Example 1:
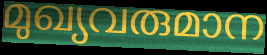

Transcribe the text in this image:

മുഖ്യവരുമാന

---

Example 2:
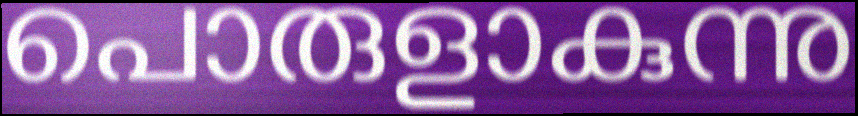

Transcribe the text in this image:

പൊരുളാകുന്നു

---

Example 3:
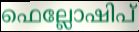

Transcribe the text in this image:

ഫെല്ലോഷിപ്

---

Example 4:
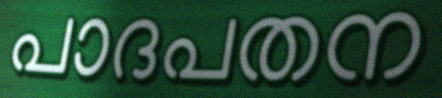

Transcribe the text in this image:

പാദപതന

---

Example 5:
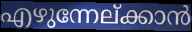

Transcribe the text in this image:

എഴുന്നേല്ക്കാൻ